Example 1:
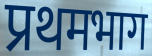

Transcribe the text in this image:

प्रथमभाग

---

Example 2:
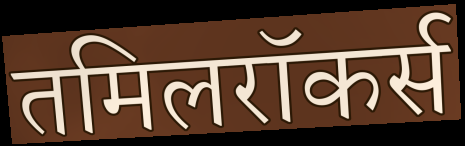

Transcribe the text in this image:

तमिलरॉकर्स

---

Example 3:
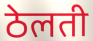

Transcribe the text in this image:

ठेलती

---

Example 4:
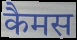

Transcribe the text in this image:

कैमस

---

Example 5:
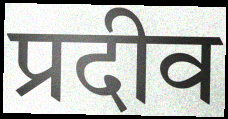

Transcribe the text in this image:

प्रदीव